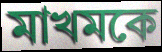
মাখমকে